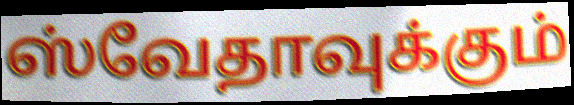
ஸ்வேதாவுக்கும்